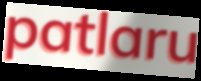
patlaru